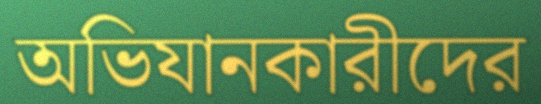
অভিযানকারীদের